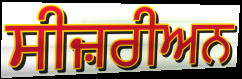
ਸੀਜ਼ਰੀਅਨ